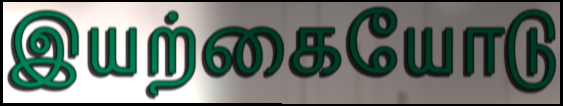
இயற்கையோடு